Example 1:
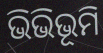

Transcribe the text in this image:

ଭିଭିଭୂମି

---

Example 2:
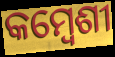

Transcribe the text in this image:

କମ୍ବେଶୀ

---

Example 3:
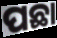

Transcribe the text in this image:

ପଛା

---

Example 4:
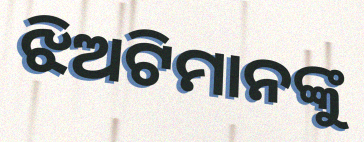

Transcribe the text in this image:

ଝିଅଟିମାନଙ୍କୁ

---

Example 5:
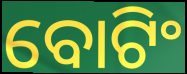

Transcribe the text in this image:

ବୋଟିଂ